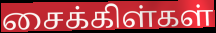
சைக்கிள்கள்